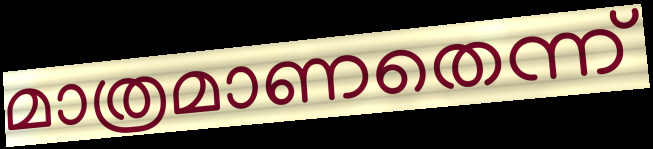
മാത്രമാണതെന്ന്